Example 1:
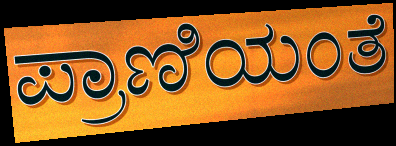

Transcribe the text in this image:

ಪ್ರಾಣಿಯಂತೆ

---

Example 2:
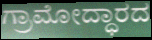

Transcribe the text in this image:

ಗ್ರಾಮೋದ್ಧಾರದ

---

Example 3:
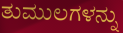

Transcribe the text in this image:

ತುಮುಲಗಳನ್ನು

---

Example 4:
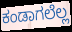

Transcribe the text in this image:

ಕಂಡಾಗಲೆಲ್ಲ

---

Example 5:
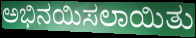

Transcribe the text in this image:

ಅಭಿನಯಿಸಲಾಯಿತು